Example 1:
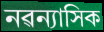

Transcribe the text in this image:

নৱন্যাসিক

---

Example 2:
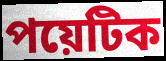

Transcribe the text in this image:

পয়েটিক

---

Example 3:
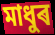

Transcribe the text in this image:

মাধুৰ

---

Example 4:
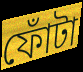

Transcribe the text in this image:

ফোঁটা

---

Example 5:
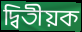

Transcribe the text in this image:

দ্বিতীয়ক